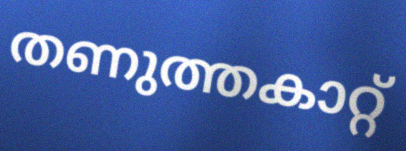
തണുത്തകാറ്റ്